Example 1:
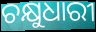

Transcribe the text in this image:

ଚକ୍ଷୁଧାରୀ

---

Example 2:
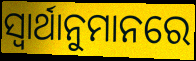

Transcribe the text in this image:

ସ୍ୱାର୍ଥାନୁମାନରେ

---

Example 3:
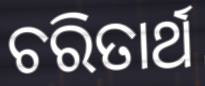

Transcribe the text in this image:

ଚରିତାର୍ଥ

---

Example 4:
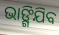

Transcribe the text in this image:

ଭାଙ୍ଗିଯିବ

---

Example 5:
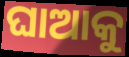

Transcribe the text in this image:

ଘାଆକୁ